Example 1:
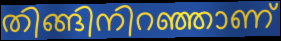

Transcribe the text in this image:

തിങ്ങിനിറഞ്ഞാണ്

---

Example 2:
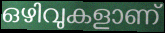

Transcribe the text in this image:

ഒഴിവുകളാണ്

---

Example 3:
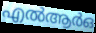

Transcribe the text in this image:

എൽആർഒ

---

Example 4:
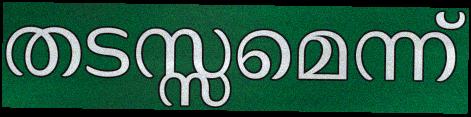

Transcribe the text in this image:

തടസ്സമെന്ന്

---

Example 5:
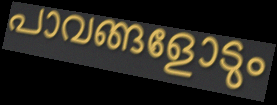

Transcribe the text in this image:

പാവങ്ങളോടും